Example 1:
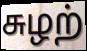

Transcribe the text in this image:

சுழற்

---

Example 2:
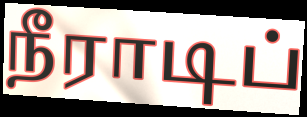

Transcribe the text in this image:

நீராடிப்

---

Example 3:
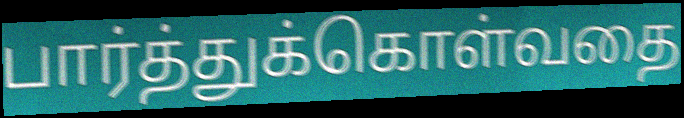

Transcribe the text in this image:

பார்த்துக்கொள்வதை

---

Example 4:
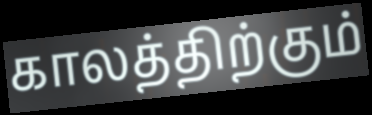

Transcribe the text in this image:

காலத்திற்கும்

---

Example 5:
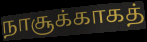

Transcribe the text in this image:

நாசூக்காகத்